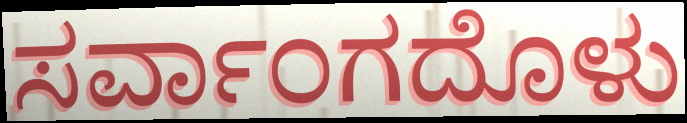
ಸರ್ವಾಂಗದೊಳು